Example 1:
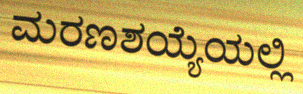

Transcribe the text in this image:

ಮರಣಶಯ್ಯೆಯಲ್ಲಿ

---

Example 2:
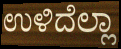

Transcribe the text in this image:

ಉಳಿದೆಲ್ಲಾ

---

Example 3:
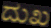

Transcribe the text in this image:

ದುಖ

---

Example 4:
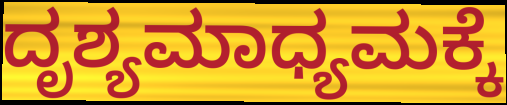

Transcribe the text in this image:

ದೃಶ್ಯಮಾಧ್ಯಮಕ್ಕೆ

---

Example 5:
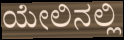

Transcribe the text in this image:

ಯೇಲಿನಲ್ಲಿ